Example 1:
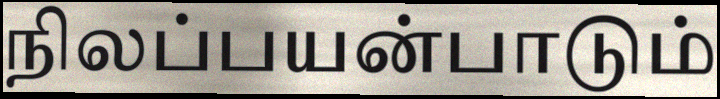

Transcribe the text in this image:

நிலப்பயன்பாடும்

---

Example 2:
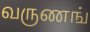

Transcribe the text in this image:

வருணங்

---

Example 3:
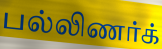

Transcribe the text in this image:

பல்லிணர்க்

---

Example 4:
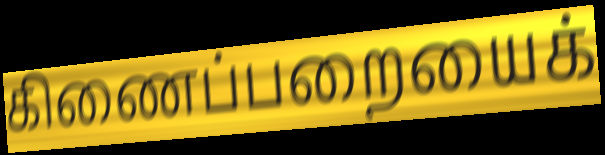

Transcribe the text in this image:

கிணைப்பறையைக்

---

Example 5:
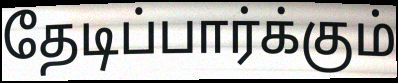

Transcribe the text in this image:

தேடிப்பார்க்கும்